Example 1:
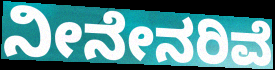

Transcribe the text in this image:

ನೀನೇನರಿವೆ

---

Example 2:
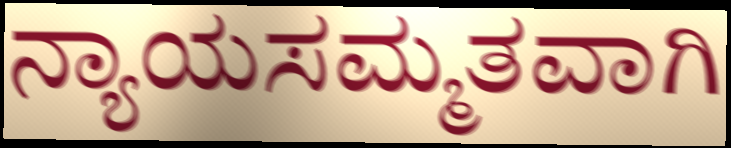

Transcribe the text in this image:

ನ್ಯಾಯಸಮ್ಮತವಾಗಿ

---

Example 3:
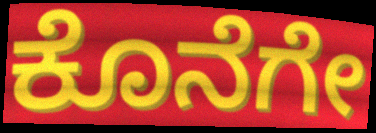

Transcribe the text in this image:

ಕೊನೆಗೇ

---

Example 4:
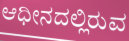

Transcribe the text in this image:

ಆಧೀನದಲ್ಲಿರುವ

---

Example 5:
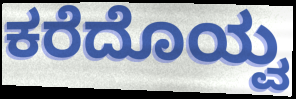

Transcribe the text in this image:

ಕರೆದೊಯ್ವ